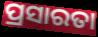
ପ୍ରସାରତା